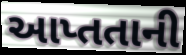
આપ્તતાની